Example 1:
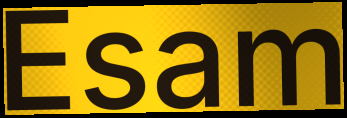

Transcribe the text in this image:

Esam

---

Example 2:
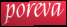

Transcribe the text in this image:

poreva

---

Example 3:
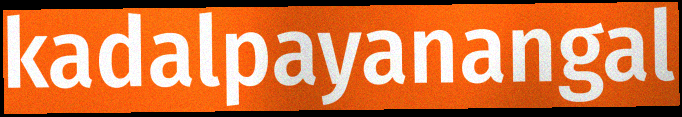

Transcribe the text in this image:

kadalpayanangal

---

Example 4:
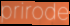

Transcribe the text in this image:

prirode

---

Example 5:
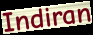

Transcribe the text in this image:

Indiran